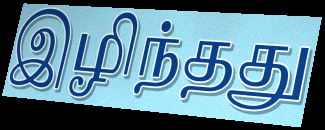
இழிந்தது